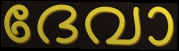
ദേവാ